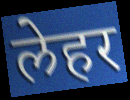
लेहर